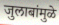
जुलाबांमुळे